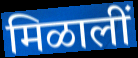
मिळालीं